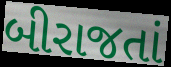
બીરાજતાં